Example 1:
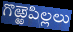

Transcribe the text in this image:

గొఱ్ఱెపిల్లలు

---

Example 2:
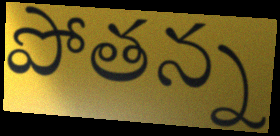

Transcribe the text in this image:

పోతన్న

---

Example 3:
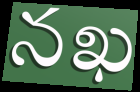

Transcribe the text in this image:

నఖ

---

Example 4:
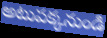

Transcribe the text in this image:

అటుపక్కనుండి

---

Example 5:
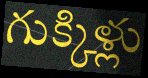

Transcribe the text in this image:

గుక్కిళ్లు